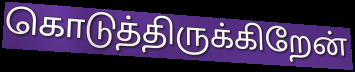
கொடுத்திருக்கிறேன்